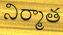
నిర్మాత